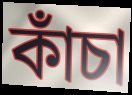
কাঁচা